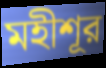
মহীশূর